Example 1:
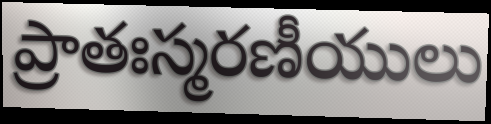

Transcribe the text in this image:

ప్రాతఃస్మరణీయులు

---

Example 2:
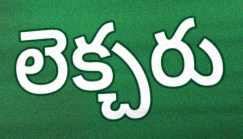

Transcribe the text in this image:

లెక్చరు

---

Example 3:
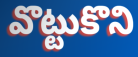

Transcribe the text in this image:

వొట్టుకొని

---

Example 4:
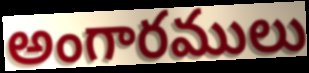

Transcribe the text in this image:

అంగారములు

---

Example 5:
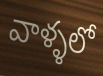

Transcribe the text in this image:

వాళ్ళలో